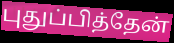
புதுப்பித்தேன்